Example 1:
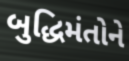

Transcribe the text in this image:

બુદ્ધિમંતોને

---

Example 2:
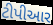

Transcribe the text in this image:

ટીપીઆર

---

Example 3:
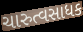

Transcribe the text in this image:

ચારુત્વસાધક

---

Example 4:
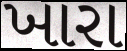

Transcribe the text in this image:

ખારા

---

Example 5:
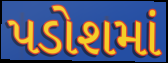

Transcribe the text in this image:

પડોશમાં